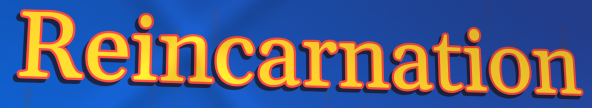
Reincarnation